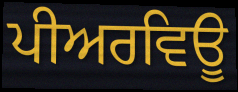
ਪੀਅਰਵਿਊ